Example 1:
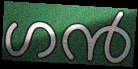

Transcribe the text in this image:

ഗൻ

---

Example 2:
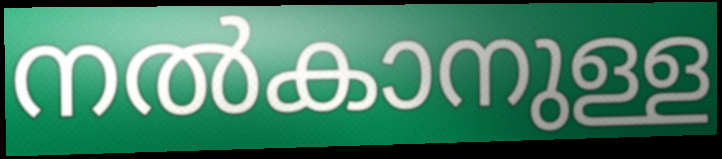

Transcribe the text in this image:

നൽകാനുള്ള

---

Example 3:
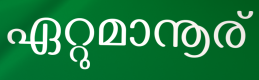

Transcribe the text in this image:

ഏറ്റുമാനൂര്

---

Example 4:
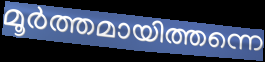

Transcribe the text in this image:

മൂർത്തമായിത്തന്നെ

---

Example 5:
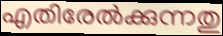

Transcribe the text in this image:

എതിരേൽക്കുന്നതു